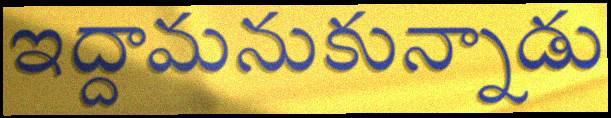
ఇద్దామనుకున్నాడు